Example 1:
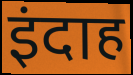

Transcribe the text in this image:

इंदाह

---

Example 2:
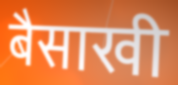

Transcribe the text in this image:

बैसाखी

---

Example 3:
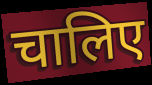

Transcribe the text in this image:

चालिए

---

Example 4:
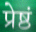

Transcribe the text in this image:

प्रेष्ठं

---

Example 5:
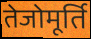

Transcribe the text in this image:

तेजोमूर्ति